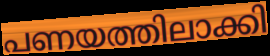
പണയത്തിലാക്കി